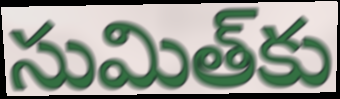
సుమిత్‌కు